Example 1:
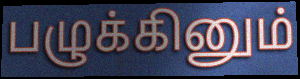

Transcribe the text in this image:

பழுக்கினும்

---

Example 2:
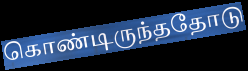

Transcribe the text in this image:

கொண்டிருந்ததோடு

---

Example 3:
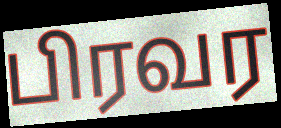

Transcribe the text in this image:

பிரவர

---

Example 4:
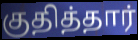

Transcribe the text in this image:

குதித்தார்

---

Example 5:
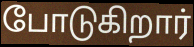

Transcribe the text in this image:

போடுகிறார்